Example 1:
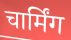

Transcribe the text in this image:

चार्मिंग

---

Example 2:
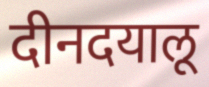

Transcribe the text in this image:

दीनदयालू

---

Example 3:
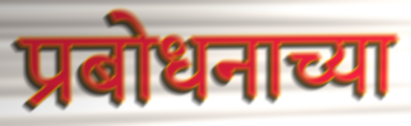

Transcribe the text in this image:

प्रबोधनाच्या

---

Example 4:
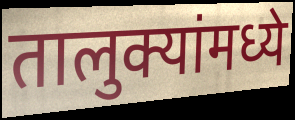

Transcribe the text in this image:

तालुक्यांमध्ये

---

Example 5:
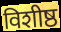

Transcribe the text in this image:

विशीष्ठ